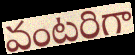
వంటరిగా